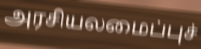
அரசியலமைப்புச்